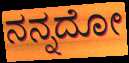
ನನ್ನದೋ